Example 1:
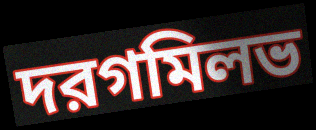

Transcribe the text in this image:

দরগমিলভ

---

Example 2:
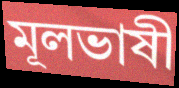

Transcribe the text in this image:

মূলভাষী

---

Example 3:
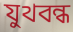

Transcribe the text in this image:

যুথবন্ধ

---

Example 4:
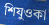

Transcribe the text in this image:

শিযুওকা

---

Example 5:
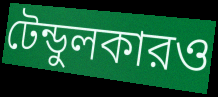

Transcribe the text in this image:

টেন্ডুলকারও